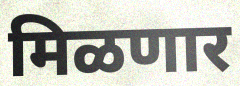
मिळणार